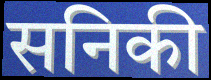
सनिकी